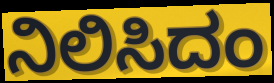
ನಿಲಿಸಿದಂ